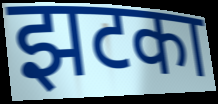
झटका